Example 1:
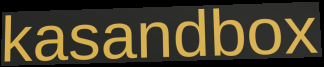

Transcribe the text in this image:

kasandbox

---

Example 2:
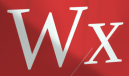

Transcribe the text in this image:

Wx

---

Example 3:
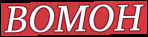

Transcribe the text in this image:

BOMOH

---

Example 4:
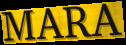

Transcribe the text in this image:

MARA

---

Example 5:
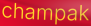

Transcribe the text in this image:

champak